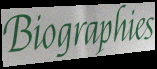
Biographies